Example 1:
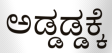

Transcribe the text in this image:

ಅಡ್ಡಡ್ಡಕ್ಕೆ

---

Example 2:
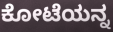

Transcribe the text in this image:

ಕೋಟೆಯನ್ನ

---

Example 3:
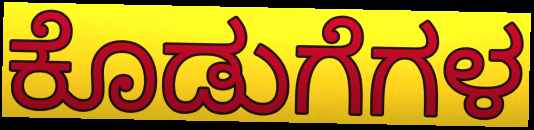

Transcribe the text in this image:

ಕೊಡುಗೆಗಳ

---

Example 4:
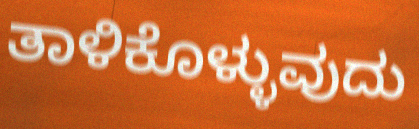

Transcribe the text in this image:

ತಾಳಿಕೊಳ್ಳುವುದು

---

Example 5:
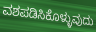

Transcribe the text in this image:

ವಶಪಡಿಸಿಕೊಳ್ಳುವುದು